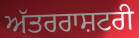
ਅੱਤਰਰਾਸ਼ਟਰੀ